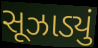
સૂઝાડ્યું